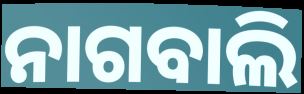
ନାଗବାଲି